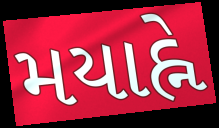
મયાહ્ને